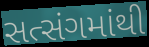
સત્સંગમાંથી